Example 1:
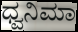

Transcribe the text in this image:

ಧ್ವನಿಮಾ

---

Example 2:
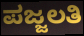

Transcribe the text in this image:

ಪಜ್ಜಲತಿ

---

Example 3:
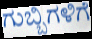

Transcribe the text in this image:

ಗುಬ್ಬಿಗಳಿಗೆ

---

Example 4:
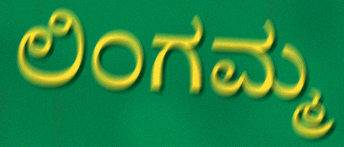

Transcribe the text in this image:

ಲಿಂಗಮ್ಮ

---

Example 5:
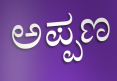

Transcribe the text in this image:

ಅಪ್ಪಣ